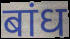
बांध